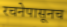
रचनेपासूनच